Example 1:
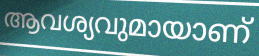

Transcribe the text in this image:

ആവശ്യവുമായാണ്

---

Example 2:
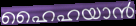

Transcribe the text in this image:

ഹൈഹയാൻ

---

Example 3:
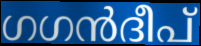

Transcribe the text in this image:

ഗഗൻദീപ്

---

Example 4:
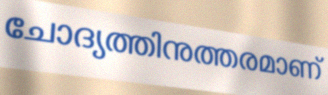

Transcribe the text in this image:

ചോദ്യത്തിനുത്തരമാണ്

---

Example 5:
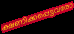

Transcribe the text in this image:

ക്ഷണിക്കപ്പെട്ടവരോ